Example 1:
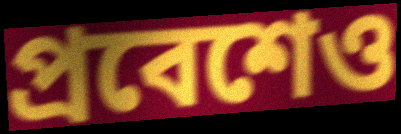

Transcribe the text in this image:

প্রবেশেও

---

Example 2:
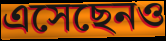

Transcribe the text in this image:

এসেছেনও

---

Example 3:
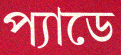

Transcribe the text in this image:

প্যাডে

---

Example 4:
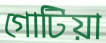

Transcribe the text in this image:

গোটিয়া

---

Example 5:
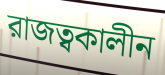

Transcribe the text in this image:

রাজত্বকালীন